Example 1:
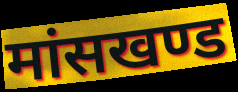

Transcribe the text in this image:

मांसखण्ड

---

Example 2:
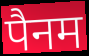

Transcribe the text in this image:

पैनम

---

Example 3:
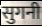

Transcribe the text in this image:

सुगनी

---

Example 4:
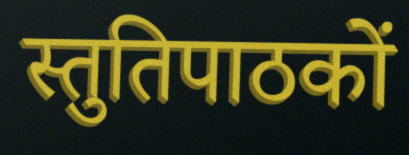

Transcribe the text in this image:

स्तुतिपाठकों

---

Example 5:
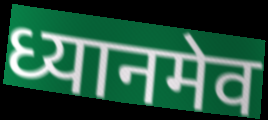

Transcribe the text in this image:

ध्यानमेव